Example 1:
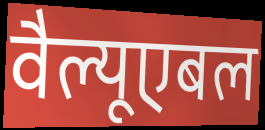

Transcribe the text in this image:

वैल्यूएबल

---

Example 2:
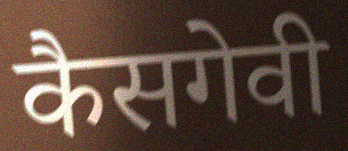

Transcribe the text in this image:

कैसगेवी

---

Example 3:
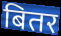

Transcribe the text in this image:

बितर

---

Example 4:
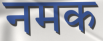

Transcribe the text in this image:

नमक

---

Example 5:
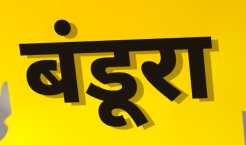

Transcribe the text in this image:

बंडूरा